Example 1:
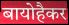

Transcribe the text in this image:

बायोहैकर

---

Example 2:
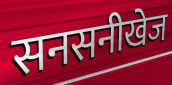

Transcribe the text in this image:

सनसनीखेज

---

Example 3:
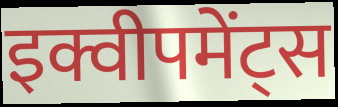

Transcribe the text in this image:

इक्वीपमेंट्स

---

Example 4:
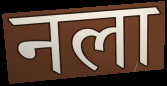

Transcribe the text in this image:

नला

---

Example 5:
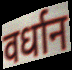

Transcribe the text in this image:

वर्धान